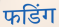
फडिंग